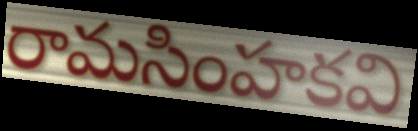
రామసింహకవి